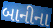
બાનીના